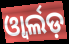
ଓ୍ୱାର୍ଲଡ଼